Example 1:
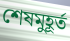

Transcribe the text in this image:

শেষমুহূর্ত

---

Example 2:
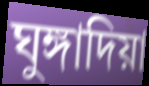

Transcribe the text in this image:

ঘুঙ্গাদিয়া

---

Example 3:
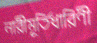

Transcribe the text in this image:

নারীমূর্তিধারিণী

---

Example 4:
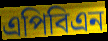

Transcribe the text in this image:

এপিবিএন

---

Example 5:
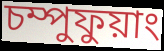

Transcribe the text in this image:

চম্পুফুয়াং